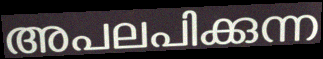
അപലപിക്കുന്ന